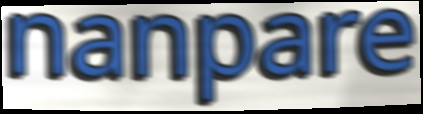
nanpare